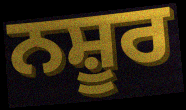
ਨਸ਼ੂਰ